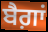
ਬੈਗ਼ਾਂ